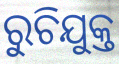
ରୁଚିଯୁକ୍ତ